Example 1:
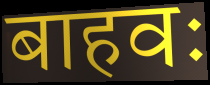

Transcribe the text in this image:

बाहवः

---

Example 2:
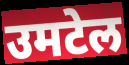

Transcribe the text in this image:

उमटेल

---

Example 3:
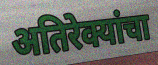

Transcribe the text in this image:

अतिरेक्यांचा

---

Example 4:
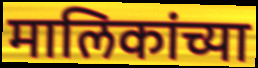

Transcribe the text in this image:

मालिकांच्या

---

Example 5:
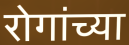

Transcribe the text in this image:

रोगांच्या